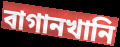
বাগানখানি